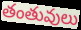
తంతువులు